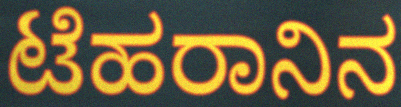
ಟೆಹರಾನಿನ